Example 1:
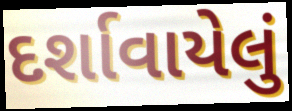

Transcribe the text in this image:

દર્શાવાયેલું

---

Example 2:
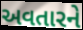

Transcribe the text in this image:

અવતારને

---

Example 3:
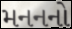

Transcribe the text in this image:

મનનનો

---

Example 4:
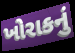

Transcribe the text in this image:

ખોરાકનું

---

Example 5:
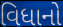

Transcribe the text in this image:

વિધાનો